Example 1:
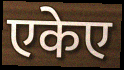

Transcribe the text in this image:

एकेए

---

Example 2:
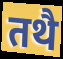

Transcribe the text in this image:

तथै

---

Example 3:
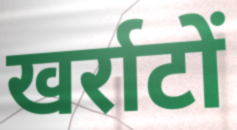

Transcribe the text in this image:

खर्राटों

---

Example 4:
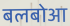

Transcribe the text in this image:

बलबोआ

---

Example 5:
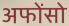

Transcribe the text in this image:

अफोंसो